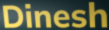
Dinesh